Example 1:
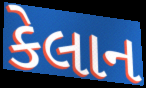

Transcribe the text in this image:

કેલાન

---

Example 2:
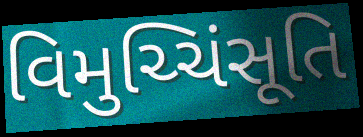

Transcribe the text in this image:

વિમુચ્ચિંસૂતિ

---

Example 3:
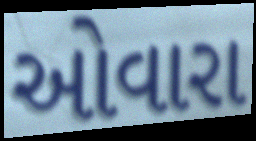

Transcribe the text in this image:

ઓવારા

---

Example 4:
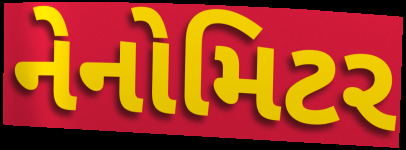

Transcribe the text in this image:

નેનોમિટર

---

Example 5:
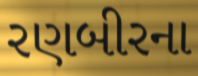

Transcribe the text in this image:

રણબીરના